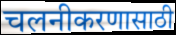
चलनीकरणासाठी